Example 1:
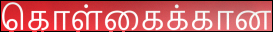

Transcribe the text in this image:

கொள்கைக்கான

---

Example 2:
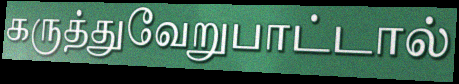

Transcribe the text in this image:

கருத்துவேறுபாட்டால்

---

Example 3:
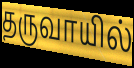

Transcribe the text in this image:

தருவாயில்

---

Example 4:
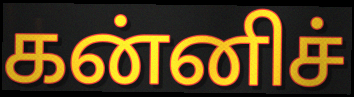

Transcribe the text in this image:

கன்னிச்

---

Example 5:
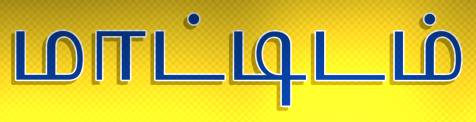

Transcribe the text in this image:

மாட்டிடம்